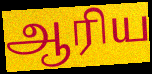
ஆரிய